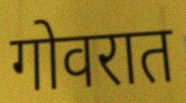
गोवरात